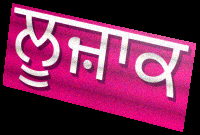
ਲੂਜ਼ਾਕ